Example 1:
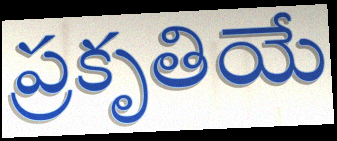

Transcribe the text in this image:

ప్రకృతియే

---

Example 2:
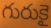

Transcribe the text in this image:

గురుకై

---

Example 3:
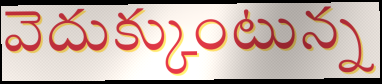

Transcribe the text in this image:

వెదుక్కుంటున్న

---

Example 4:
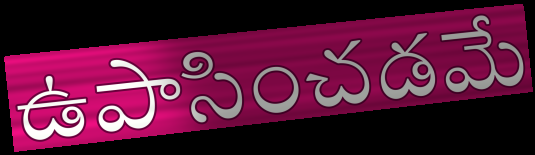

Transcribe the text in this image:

ఉపాసించడమే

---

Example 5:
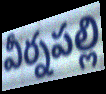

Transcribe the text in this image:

వీర్నపల్లి